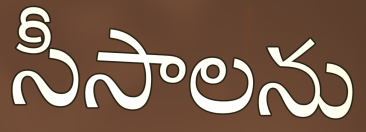
సీసాలను